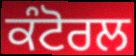
ਕੰਟੋਰਲ